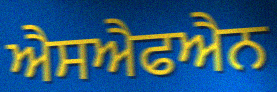
ਐਸਐਫਐਨ